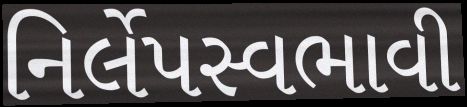
નિર્લેપસ્વભાવી